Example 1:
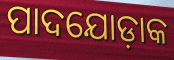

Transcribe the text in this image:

ପାଦଯୋଡ଼ାକ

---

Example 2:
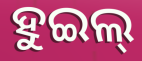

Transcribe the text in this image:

ହୁଇଲ୍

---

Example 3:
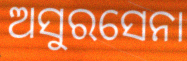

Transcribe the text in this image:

ଅସୁରସେନା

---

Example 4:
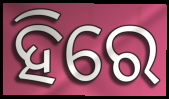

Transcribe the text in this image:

ହିରେ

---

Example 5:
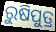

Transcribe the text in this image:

ରୁଷିପୁତ୍ର